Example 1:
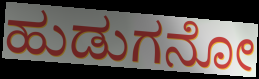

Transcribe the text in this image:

ಹುಡುಗನೋ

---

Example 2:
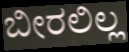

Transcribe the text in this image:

ಬೀರಲಿಲ್ಲ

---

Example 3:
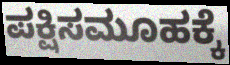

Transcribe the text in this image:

ಪಕ್ಷಿಸಮೂಹಕ್ಕೆ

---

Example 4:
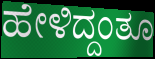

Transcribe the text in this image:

ಹೇಳಿದ್ದಂತೂ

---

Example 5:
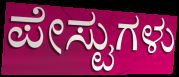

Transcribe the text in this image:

ಪೇಸ್ಟುಗಳು